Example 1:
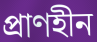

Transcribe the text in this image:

প্রাণহীন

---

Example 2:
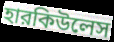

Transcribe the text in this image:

হারকিউলেস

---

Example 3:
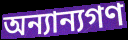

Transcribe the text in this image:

অন্যান্যগণ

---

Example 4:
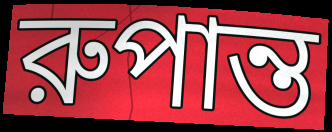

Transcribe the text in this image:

রুপান্ত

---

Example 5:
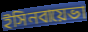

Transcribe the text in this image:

ইসিনবায়েভা